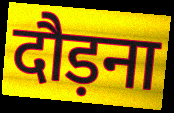
दौड़ना